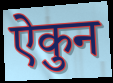
ऐकुन